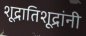
शूद्रातिशूद्रांनी